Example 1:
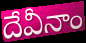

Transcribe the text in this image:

దేవీనాం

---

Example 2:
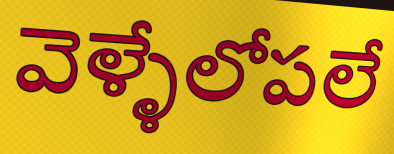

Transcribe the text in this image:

వెళ్ళేలోపలే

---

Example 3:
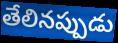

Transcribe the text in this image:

తేలినప్పుడు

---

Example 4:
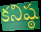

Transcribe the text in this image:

కనిష్ఠ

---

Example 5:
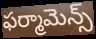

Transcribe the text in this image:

ఫర్మామెన్స్